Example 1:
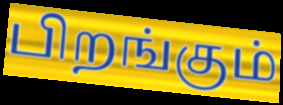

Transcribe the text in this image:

பிறங்கும்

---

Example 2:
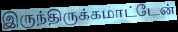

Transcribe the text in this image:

இருந்திருக்கமாட்டேன்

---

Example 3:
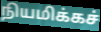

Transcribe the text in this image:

நியமிக்கச்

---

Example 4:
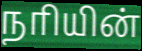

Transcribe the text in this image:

நரியின்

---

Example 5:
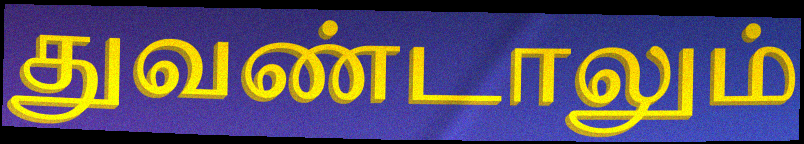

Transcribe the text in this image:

துவண்டாலும்